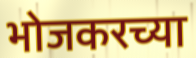
भोजकरच्या